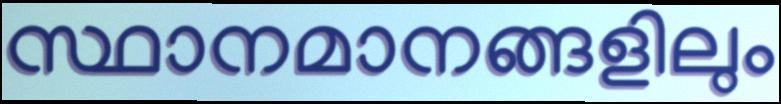
സ്ഥാനമാനങ്ങളിലും